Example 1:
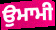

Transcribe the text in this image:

ਉਮਾਮੀ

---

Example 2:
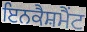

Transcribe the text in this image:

ਇਨਕੈਸ਼ਮੈਂਟ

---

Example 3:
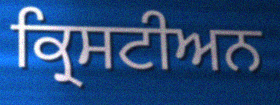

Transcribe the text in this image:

ਕ੍ਰਿਸਟੀਅਨ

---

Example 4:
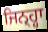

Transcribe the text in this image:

ਜਿਨ੍ਹ੍ਹਾ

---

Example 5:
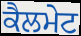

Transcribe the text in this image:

ਕੈਲਮੇਟ